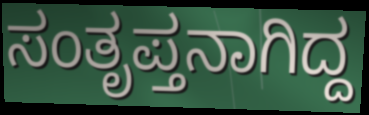
ಸಂತೃಪ್ತನಾಗಿದ್ದ